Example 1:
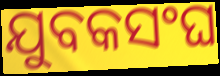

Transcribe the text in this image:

ଯୁବକସଂଘ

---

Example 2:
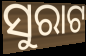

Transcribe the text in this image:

ସୁରାଟ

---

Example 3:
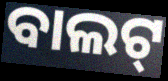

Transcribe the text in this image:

ବାଲଟ୍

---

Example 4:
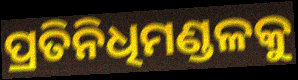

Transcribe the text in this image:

ପ୍ରତିନିଧିମଣ୍ଡଳକୁ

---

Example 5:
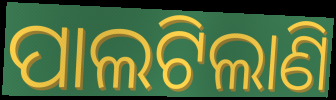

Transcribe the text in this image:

ପାଲଟିଲାଣି